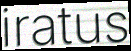
iratus